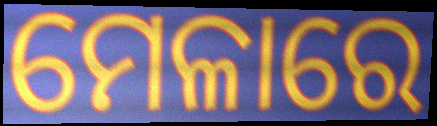
ମେଳାରେ